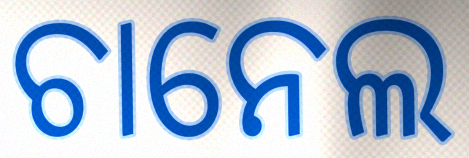
ଚାନେଲ